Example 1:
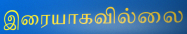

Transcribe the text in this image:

இரையாகவில்லை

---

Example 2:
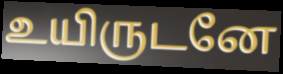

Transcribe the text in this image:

உயிருடனே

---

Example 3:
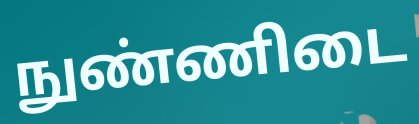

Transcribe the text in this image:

நுண்ணிடை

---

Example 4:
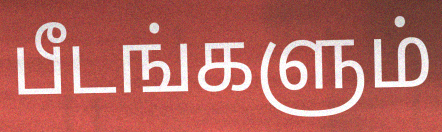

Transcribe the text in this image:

பீடங்களும்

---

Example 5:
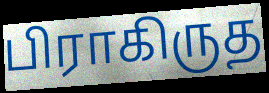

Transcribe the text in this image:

பிராகிருத